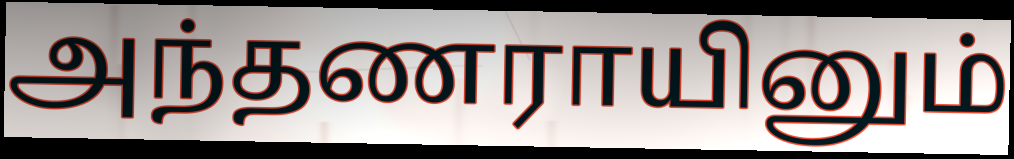
அந்தணராயினும்